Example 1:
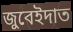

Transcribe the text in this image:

জুবেইদাত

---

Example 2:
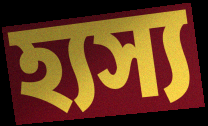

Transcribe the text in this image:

হ্যস্য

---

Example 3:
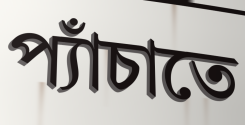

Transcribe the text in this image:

প্যাঁচাতে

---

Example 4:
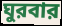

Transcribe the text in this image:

ঘুরবার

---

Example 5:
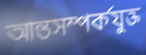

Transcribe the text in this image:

আন্তসম্পর্কযুক্ত